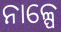
ନାଳ୍ପେ